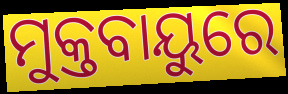
ମୁକ୍ତବାୟୁରେ